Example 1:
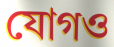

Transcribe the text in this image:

যোগও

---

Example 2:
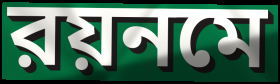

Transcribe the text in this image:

রয়নমে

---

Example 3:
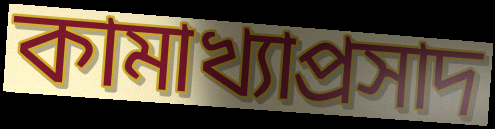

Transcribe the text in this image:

কামাখ্যাপ্রসাদ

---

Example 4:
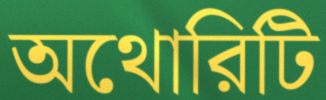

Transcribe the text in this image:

অথোরিটি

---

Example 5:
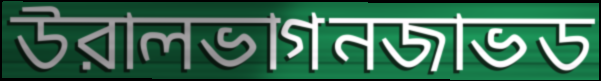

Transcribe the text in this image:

উরালভাগনজাভড